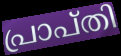
പ്രാപ്തി